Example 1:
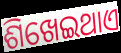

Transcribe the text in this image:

ଶିଖେଇଥାଏ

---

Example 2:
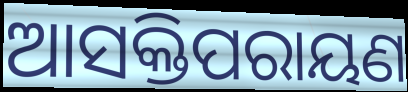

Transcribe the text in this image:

ଆସକ୍ତିପରାୟଣ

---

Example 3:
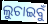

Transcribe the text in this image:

ଲୁଚାଇବୁଁ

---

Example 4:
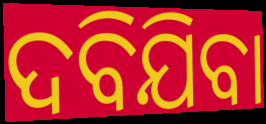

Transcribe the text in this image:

ଦବିଯିବା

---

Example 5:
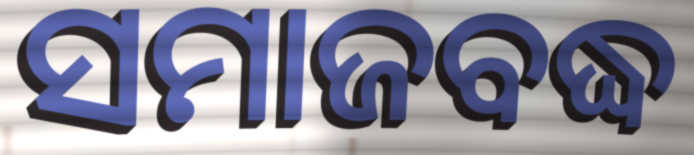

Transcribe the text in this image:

ସମାଜବଦ୍ଧ